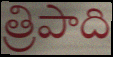
త్రిపాది